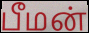
பீமன்